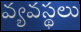
వ్యవస్థలు